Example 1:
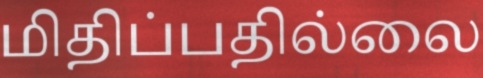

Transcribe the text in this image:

மிதிப்பதில்லை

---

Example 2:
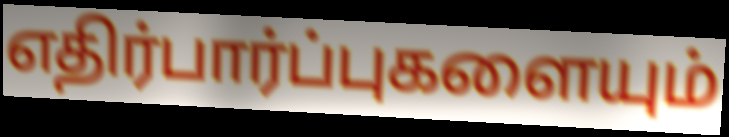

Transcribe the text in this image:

எதிர்பார்ப்புகளையும்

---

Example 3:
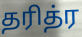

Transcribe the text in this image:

தரித்ர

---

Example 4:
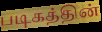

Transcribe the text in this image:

படிகத்தின்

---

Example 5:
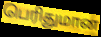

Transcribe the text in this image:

பெரிதுமான